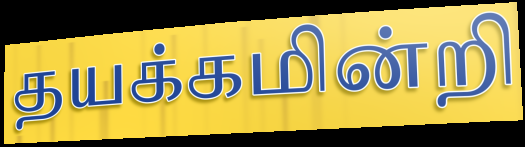
தயக்கமின்றி